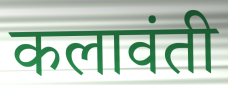
कलावंती